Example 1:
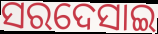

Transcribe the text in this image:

ସରଦେସାଇ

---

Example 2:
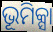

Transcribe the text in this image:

ଭୂମିକ୍ସା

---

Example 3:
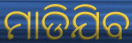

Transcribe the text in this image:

ମାଡିଯିବ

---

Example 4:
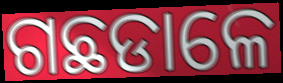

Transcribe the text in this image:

ଗଛଡାଳେ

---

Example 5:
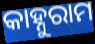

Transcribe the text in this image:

କାହ୍ନୁରାମ